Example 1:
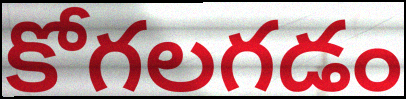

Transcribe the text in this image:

కోగలగడం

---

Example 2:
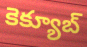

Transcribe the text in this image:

కెక్యూబ్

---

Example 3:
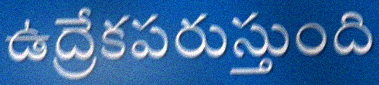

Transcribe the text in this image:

ఉద్రేకపరుస్తుంది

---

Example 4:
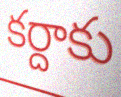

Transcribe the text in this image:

కర్దాకు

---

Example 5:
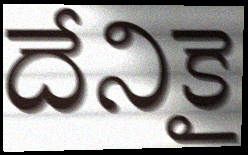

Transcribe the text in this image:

దేనికై